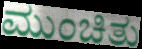
ಮುಂಚಿತು